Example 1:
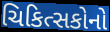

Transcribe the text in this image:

ચિકિત્સકોનો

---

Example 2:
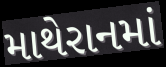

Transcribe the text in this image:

માથેરાનમાં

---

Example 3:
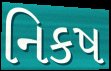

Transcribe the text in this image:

નિકષ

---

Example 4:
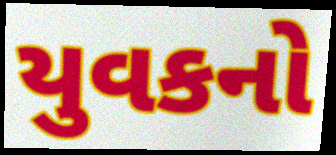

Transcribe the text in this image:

યુવકનો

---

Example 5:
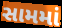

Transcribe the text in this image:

સામમાં